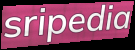
sripedia